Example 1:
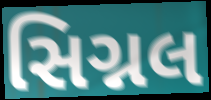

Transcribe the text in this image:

સિગ્નલ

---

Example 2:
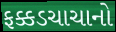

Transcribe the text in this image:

ફક્કડચાચાનો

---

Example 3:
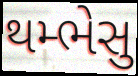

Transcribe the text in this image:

થમ્ભેસુ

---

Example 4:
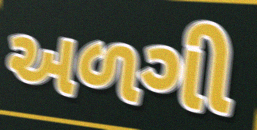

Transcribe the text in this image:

અળગી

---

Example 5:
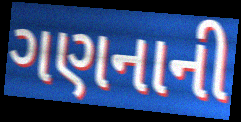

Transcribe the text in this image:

ગણનાની